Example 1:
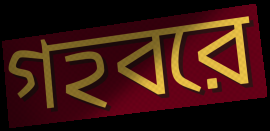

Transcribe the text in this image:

গহবরে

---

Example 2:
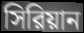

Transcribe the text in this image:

সিরিয়ান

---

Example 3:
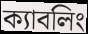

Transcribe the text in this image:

ক্যাবলিং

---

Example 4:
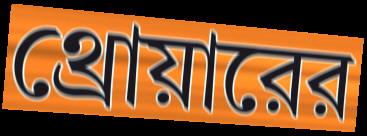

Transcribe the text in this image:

থ্রোয়ারের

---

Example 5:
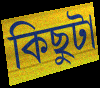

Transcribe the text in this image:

কিছুটা